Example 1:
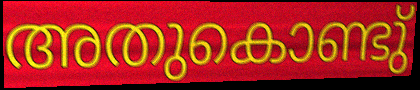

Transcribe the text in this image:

അതുകൊണ്ടു്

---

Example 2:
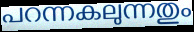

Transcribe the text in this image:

പറന്നകലുന്നതും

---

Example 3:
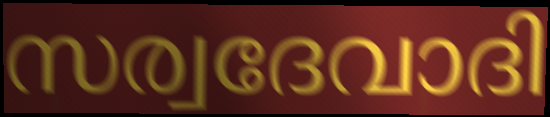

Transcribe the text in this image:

സര്വദേവാദി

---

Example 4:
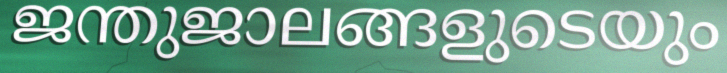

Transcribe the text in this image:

ജന്തുജാലങ്ങളുടെയും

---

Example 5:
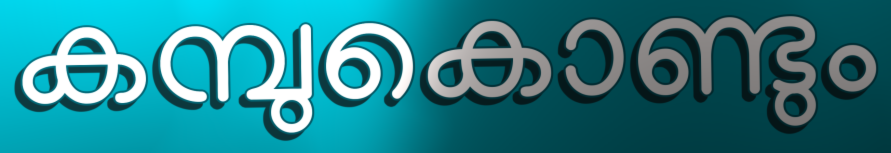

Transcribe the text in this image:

കമ്പുകൊണ്ടും